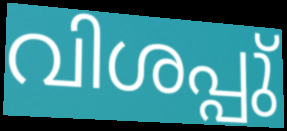
വിശപ്പു്